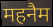
महनैम